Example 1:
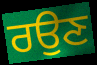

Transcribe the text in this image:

ਰਉਣ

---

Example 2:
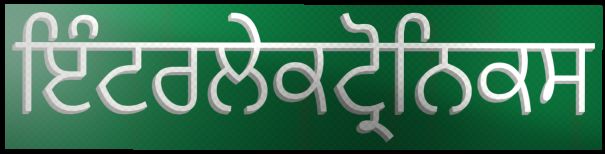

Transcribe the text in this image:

ਇੰਟਰਲੇਕਟ੍ਰੋਨਿਕਸ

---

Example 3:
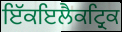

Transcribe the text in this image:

ਇੱਕਇਲੈਕਟ੍ਰਿਕ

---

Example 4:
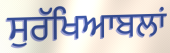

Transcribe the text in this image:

ਸੁਰੱਖਿਆਬਲਾਂ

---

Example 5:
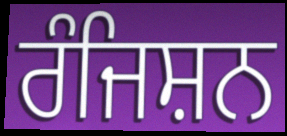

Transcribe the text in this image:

ਰੰਜਿਸ਼ਨ